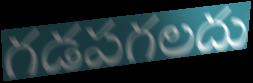
గడపగలదు